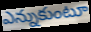
ఎన్నుకుంటూ